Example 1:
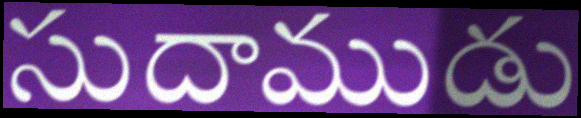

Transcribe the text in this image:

సుదాముడు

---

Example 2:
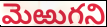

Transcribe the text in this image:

మెఱుగని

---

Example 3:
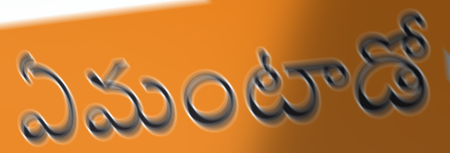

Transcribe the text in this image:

ఏమంటాడో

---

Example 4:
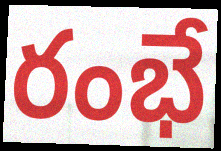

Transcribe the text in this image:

రంభే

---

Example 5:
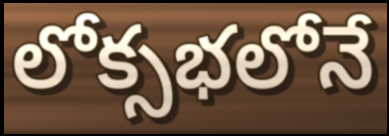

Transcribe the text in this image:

లోక్సభలోనే